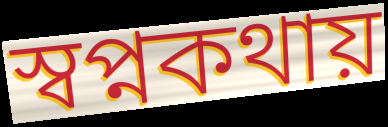
স্বপ্নকথায়